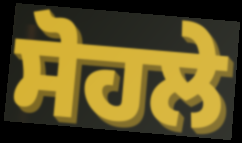
ਸੋਹਲੇ